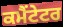
ਕਮੈਂਟੇਟਰ